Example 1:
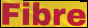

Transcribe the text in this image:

Fibre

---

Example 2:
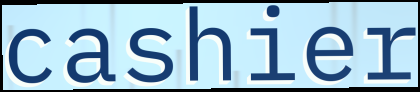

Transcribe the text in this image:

cashier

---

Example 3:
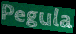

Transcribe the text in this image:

Pegula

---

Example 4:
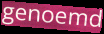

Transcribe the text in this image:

genoemd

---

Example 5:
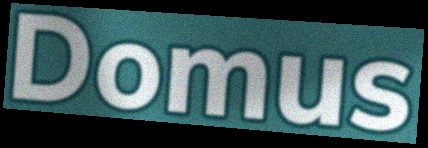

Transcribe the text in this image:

Domus